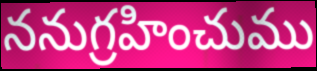
ననుగ్రహించుము